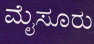
ಮೈಸೂರು